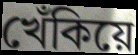
খেঁকিয়ে